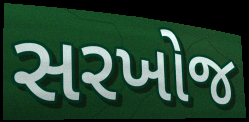
સરખોજ